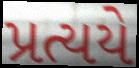
પ્રત્યયે